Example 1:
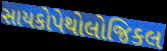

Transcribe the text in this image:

સાયકોપેથોલોજિકલ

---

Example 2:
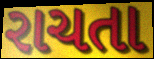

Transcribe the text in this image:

રાચતા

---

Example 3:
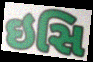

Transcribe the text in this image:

ઇસિ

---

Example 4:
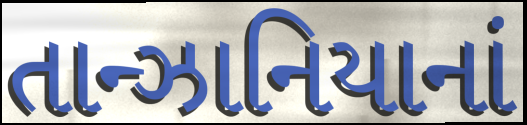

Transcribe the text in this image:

તાન્ઝાનિયાનાં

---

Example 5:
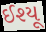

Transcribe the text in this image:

ઈશ્યૂ